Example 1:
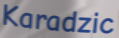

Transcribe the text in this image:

Karadzic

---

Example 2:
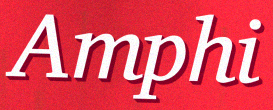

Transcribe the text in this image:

Amphi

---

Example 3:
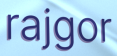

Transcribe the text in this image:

rajgor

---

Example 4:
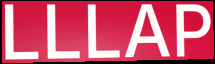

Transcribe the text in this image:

LLLAP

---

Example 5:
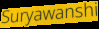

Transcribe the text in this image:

Suryawanshi